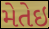
મેતેઇ